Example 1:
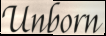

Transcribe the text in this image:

Unborn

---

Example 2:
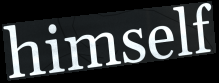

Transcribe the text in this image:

himself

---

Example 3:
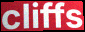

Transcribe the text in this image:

cliffs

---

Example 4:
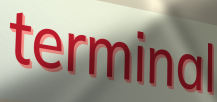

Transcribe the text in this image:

terminal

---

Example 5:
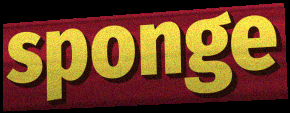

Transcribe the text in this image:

sponge